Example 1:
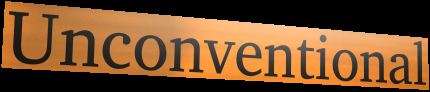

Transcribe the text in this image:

Unconventional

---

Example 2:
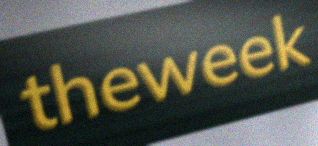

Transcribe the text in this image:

theweek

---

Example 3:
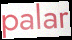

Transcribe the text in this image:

palar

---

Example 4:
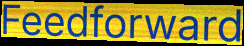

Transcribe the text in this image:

Feedforward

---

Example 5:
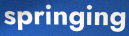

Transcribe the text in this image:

springing